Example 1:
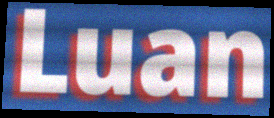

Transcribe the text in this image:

Luan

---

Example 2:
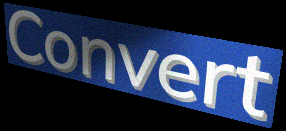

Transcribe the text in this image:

Convert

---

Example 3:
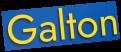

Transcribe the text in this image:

Galton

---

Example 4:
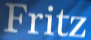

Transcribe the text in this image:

Fritz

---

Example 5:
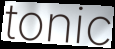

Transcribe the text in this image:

tonic